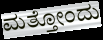
ಮತ್ತೋಂದು